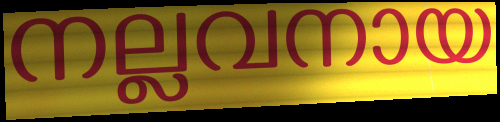
നല്ലവനായ